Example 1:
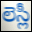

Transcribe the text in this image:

లెస్లీ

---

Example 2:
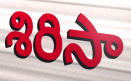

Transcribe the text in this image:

శిరిసా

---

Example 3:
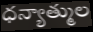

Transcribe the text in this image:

ధన్యాత్ముల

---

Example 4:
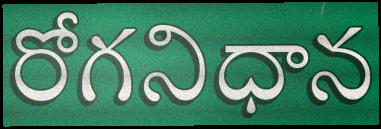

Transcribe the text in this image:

రోగనిధాన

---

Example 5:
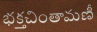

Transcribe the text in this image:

భక్తచింతామణీ